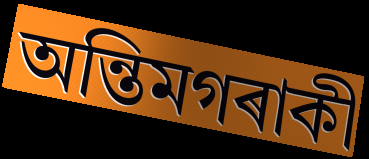
অন্তিমগৰাকী